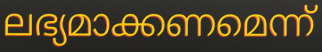
ലഭ്യമാക്കണമെന്ന്